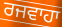
ਰਜਵਾਹਾ